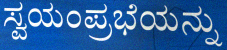
ಸ್ವಯಂಪ್ರಭೆಯನ್ನು